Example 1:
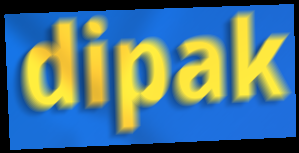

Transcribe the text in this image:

dipak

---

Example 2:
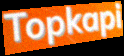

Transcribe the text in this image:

Topkapi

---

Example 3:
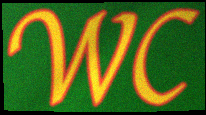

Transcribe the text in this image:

WC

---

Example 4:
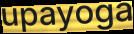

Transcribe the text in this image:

upayoga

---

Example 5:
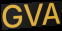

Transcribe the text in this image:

GVA